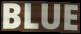
BLUE